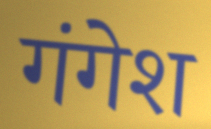
गंगेश